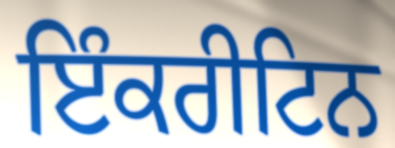
ਇੰਕਰੀਟਿਨ